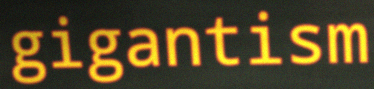
gigantism